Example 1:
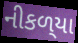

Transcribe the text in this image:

નીકળ્‌યા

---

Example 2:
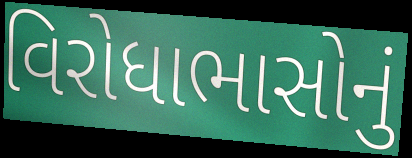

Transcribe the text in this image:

વિરોધાભાસોનું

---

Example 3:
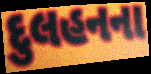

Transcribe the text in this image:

દુલહનના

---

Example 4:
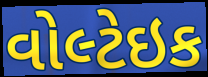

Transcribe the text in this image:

વોલ્ટેઇક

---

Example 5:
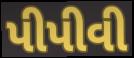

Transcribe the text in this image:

પીપીવી